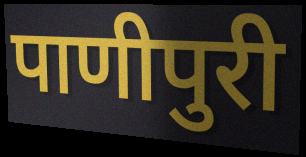
पाणीपुरी